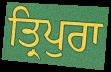
ਤ੍ਰਿਪੁਰਾ